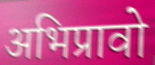
अभिप्रावो